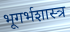
भूगर्भशास्त्र